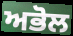
ਅਭੋਲ